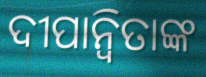
ଦୀପାନ୍ୱିତାଙ୍କ